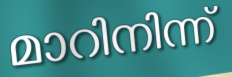
മാറിനിന്ന്